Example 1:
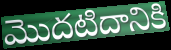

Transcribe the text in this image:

మొదటిదానికి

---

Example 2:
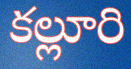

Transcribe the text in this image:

కల్లూరి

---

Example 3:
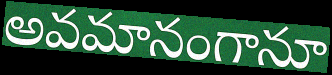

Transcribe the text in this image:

అవమానంగానూ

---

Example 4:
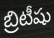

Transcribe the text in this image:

బ్రిటీషు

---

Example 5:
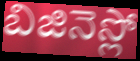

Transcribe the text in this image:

బిజినెస్లో